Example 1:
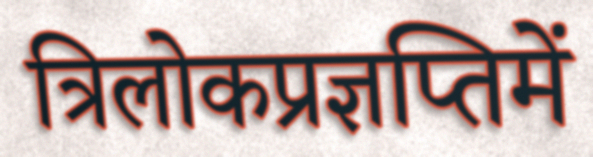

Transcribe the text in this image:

त्रिलोकप्रज्ञप्तिमें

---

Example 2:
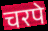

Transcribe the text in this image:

चरपे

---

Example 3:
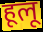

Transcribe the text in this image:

हूलू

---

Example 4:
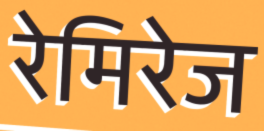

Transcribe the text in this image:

रेमिरेज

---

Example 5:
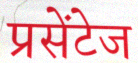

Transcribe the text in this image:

प्रसेंटेज